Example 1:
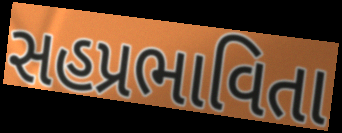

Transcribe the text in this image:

સહપ્રભાવિતા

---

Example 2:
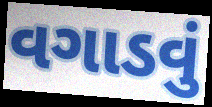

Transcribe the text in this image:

વગાડવું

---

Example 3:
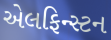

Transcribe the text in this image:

એલફિન્સ્ટન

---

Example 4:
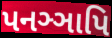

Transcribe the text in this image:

પનઞ્ઞાપિ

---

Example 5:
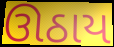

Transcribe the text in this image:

ઊઠાય